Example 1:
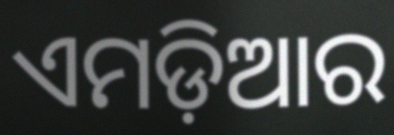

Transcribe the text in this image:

ଏମଡ଼ିଆର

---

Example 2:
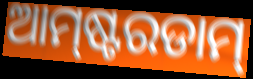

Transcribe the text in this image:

ଆମ୍‍ଷ୍ଟରଡାମ୍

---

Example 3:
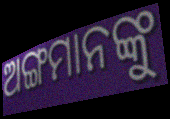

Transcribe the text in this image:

ଅଙ୍ଗମାନଙ୍କୁ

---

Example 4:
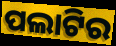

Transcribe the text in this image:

ପଲାଟିର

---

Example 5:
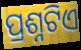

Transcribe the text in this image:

ପ୍ରଶ୍ନଟିଏ